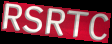
RSRTC